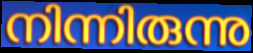
നിന്നിരുന്നു